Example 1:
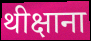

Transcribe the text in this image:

थीक्षाना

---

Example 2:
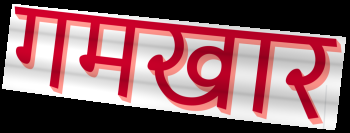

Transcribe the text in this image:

गमखार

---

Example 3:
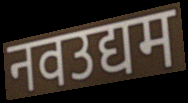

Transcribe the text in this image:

नवउद्यम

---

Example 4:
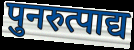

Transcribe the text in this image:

पुनरुत्पाद्य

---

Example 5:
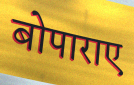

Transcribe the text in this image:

बोपाराए